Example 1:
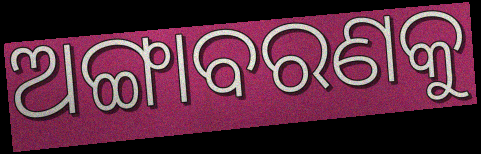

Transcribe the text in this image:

ଅଙ୍ଗାବରଣକୁ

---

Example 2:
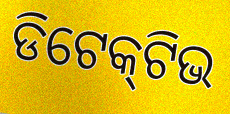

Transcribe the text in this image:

ଡିଟେକ୍‍ଟିଭ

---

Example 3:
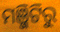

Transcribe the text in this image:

ମଞ୍ଜିଟିରୁ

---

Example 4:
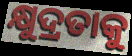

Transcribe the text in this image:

କ୍ଷୁଦ୍ରତାକୁ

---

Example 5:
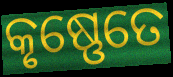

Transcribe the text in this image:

କୃଷ୍ଣେତେ